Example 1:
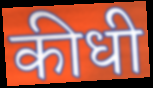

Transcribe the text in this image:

कीधी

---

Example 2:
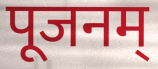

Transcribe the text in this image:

पूजनम्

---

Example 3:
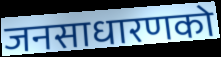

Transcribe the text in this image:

जनसाधारणको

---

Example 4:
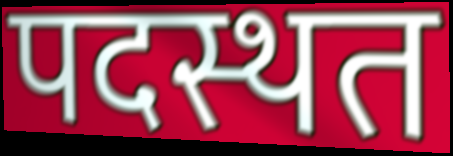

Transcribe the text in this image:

पदस्थत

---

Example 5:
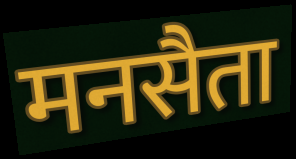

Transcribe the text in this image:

मनसैता